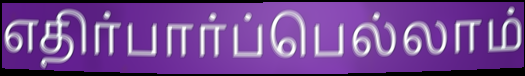
எதிர்பார்ப்பெல்லாம்